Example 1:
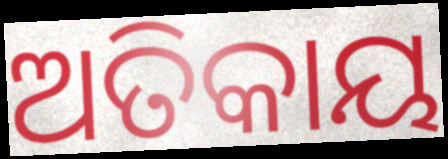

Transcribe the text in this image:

ଅତିକାୟ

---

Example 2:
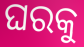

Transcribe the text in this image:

ଘରକୁ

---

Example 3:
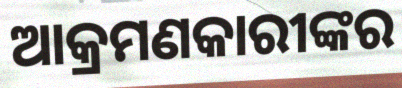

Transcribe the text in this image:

ଆକ୍ରମଣକାରୀଙ୍କର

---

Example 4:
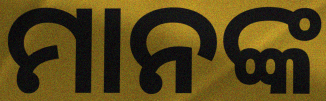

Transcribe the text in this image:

ମାନଙ୍କ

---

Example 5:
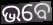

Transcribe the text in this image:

ଭବେ